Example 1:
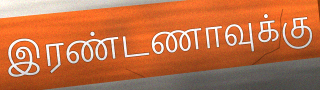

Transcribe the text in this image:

இரண்டணாவுக்கு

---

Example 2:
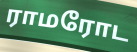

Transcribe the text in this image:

ராமரோட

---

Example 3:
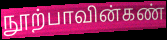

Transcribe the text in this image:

நூற்பாவின்கண்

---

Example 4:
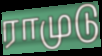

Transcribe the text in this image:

ராமுடு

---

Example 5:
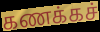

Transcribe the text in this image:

கணக்கச்